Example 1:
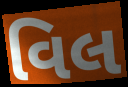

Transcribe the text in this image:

વિલ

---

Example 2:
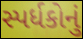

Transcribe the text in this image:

સ્પર્ધકોનું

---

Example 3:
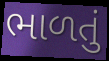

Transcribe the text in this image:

ભાળતું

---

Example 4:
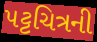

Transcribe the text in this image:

પટ્ટચિત્રની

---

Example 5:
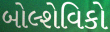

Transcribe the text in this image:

બોલ્શેવિકો